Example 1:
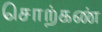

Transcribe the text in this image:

சொற்கண்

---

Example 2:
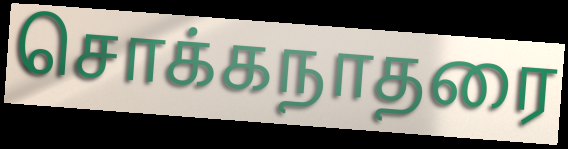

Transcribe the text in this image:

சொக்கநாதரை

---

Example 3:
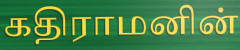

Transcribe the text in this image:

கதிராமனின்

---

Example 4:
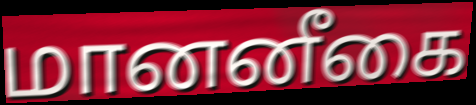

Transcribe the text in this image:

மானனீகை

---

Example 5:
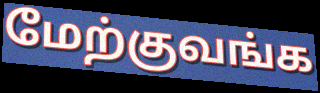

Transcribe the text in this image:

மேற்குவங்க